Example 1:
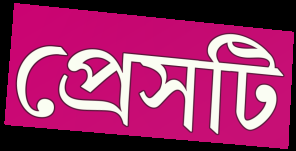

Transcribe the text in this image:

প্রেসটি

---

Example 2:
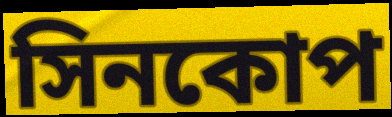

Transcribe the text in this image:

সিনকোপ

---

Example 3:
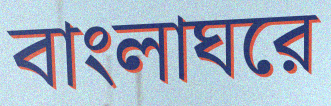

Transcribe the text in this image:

বাংলাঘরে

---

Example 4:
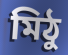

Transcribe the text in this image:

মিঠু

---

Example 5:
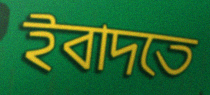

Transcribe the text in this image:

ইবাদতে